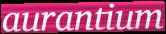
aurantium